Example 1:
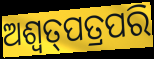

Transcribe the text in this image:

ଅଶ୍ଵତ୍‌ପତ୍ରପରି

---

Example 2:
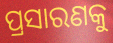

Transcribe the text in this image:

ପ୍ରସାରଣକୁ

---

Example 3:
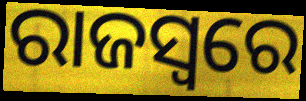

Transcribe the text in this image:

ରାଜସ୍ବରେ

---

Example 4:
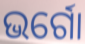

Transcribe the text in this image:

ଭର୍ଗୋ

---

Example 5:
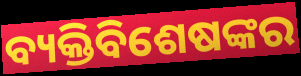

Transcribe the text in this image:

ବ୍ୟକ୍ତିବିଶେଷଙ୍କର